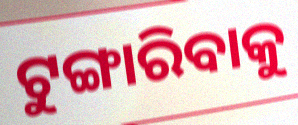
ଟୁଙ୍ଗାରିବାକୁ